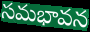
సమభావన